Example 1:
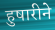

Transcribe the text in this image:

हुषारीने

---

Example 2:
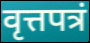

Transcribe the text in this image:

वृत्तपत्रं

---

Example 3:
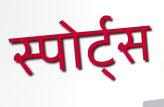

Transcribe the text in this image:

स्पोर्ट्स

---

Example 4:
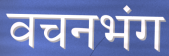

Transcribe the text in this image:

वचनभंग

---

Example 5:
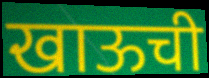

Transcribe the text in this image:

खाऊची